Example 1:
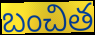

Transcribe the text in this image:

బంచిత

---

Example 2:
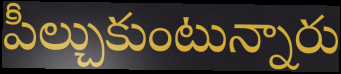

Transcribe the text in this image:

పీల్చుకుంటున్నారు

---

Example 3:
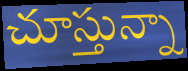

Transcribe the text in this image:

చూస్తున్నా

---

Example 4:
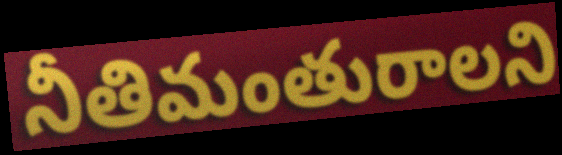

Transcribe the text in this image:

నీతిమంతురాలని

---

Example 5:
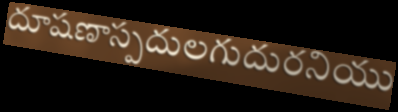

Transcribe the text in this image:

దూషణాస్పదులగుదురనియు